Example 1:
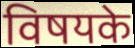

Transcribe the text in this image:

विषयके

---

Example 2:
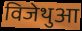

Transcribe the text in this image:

विजेथुआ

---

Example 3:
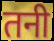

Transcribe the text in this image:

तनी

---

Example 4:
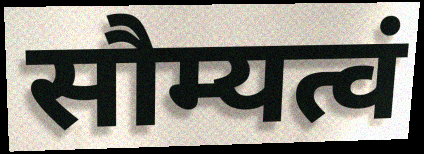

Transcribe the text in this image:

सौम्यत्वं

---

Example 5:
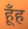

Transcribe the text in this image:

हूँह